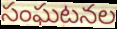
సంఘటనల